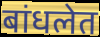
बांधलेत